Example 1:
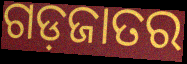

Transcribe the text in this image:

ଗଡ଼ଜାତର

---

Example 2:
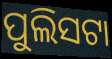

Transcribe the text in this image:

ପୁଲିସଟା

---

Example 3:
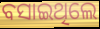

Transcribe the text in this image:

ବସାଇଥିଲେ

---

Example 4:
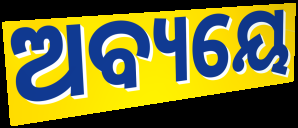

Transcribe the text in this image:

ଅବ୍ୟୟେ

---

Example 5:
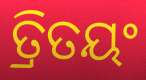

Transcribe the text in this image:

ତ୍ରିତୟଂ